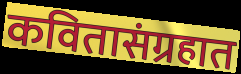
कवितासंग्रहात